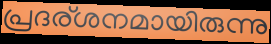
പ്രദര്ശനമായിരുന്നു